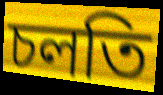
চলতি